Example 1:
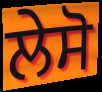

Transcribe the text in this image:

ਲੇਸੋ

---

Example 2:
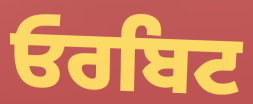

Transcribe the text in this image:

ਓਰਬਿਟ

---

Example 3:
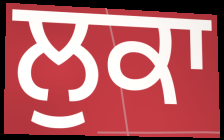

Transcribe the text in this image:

ਲੁਕਾ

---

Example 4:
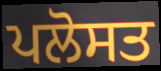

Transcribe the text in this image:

ਪਲੋਸਤ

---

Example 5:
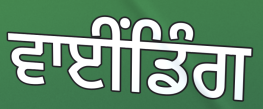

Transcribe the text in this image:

ਵਾਈਂਡਿੰਗ